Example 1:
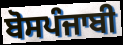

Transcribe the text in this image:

ਬੋਸਪੰਜਾਬੀ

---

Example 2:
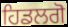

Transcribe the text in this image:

ਹਿਡਲਗੋ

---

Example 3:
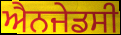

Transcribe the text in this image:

ਐਨਜੇਡਸੀ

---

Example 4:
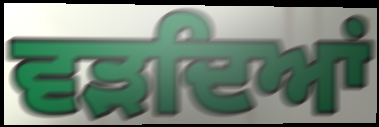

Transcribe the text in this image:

ਵੜਦਿਆਂ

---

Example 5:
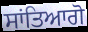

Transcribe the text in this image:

ਸਾਂਤਿਆਗੋ